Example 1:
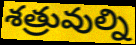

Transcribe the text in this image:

శత్రువుల్ని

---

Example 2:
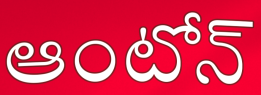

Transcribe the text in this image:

ఆంటోన్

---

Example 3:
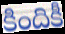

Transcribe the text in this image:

కిందికీ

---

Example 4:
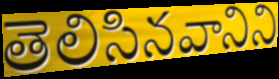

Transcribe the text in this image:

తెలిసినవానిని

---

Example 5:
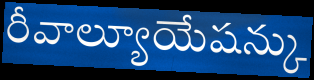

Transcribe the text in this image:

రీవాల్యూయేషన్కు